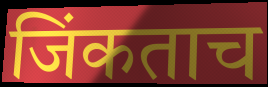
जिंकताच